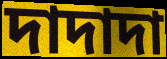
দাদাদা